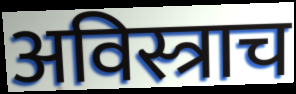
अविस्त्राच